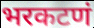
भरकटणं